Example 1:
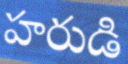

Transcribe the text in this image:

హరుడి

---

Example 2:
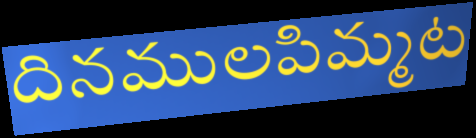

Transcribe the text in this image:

దినములపిమ్మట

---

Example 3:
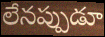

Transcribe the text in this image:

లేనప్పుడూ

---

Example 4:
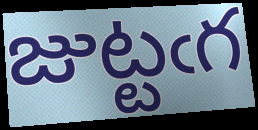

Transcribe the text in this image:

జుట్టఁగ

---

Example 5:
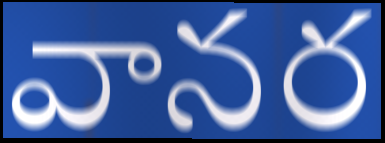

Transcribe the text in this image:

వానర